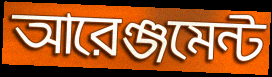
আরেঞ্জমেন্ট